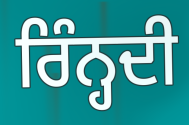
ਰਿੰਨ੍ਹਦੀ